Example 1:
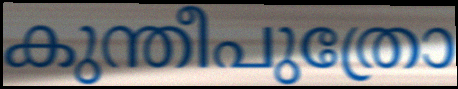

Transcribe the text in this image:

കുന്തീപുത്രോ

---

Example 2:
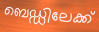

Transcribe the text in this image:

ബെഡ്ഡിലേക്ക്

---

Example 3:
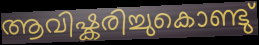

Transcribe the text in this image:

ആവിഷ്കരിച്ചുകൊണ്ടു്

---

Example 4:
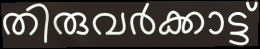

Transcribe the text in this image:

തിരുവർക്കാട്ട്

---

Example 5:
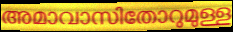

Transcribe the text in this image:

അമാവാസിതോറുമുള്ള